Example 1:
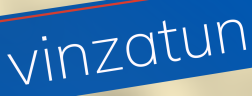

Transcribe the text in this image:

vinzatun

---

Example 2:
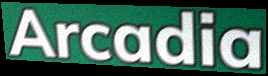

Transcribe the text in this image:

Arcadia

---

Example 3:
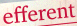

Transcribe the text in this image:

efferent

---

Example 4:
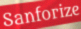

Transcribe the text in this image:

Sanforize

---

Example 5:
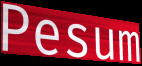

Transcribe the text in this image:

Pesum